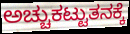
ಅಚ್ಚುಕಟ್ಟುತನಕ್ಕೆ